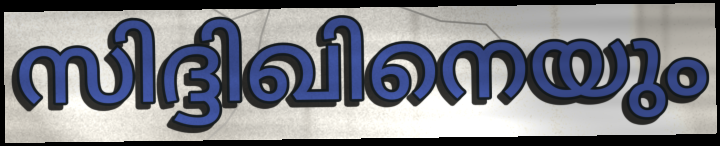
സിദ്ദിഖിനെയും